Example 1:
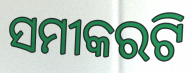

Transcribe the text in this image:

ସମୀକରଟି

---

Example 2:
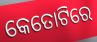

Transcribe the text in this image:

କେତୋଟିରେ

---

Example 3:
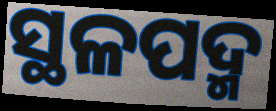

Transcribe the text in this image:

ସ୍ଥଳପଦ୍ମ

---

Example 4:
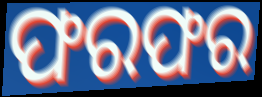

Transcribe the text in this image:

ଫରଫର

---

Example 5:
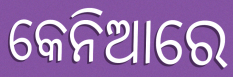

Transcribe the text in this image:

କେନିଆରେ